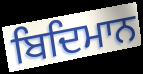
ਬਿਦਿਮਾਨ